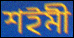
শইমী